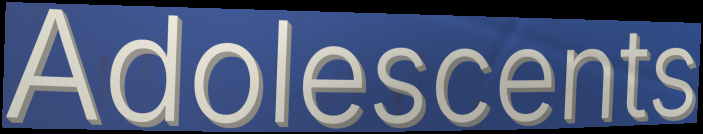
Adolescents